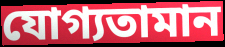
যোগ্যতামান